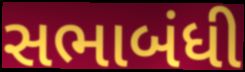
સભાબંધી